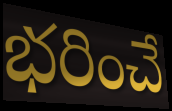
భరించే